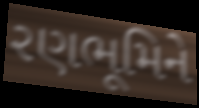
રણભૂમિને